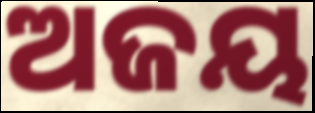
ଅଜୟ